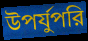
উপর্যুপরি